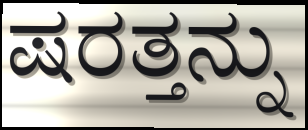
ಷರತ್ತನ್ನು